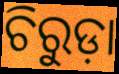
ଚିରୁଡ଼ା